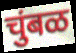
चुंबळ